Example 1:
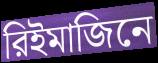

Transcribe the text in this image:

রিইমাজিনে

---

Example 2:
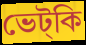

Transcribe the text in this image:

ভেট্কি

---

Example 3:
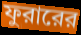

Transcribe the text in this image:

ফুরারের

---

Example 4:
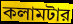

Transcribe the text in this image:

কলামটার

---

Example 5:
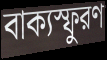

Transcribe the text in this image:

বাক্যস্ফুরণ